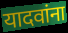
यादवांना